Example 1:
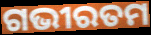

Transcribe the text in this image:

ଗଭୀରତମ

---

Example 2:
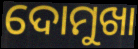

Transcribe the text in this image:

ଦୋମୁଖା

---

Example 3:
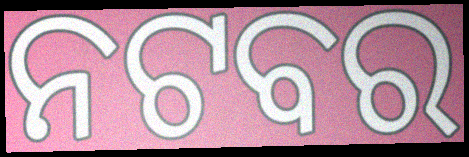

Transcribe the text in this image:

ନଟବର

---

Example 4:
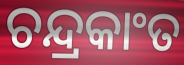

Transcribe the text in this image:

ଚନ୍ଦ୍ରକାଂତ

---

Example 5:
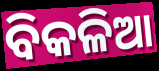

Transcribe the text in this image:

ବିକଳିଆ